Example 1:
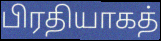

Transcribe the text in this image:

பிரதியாகத்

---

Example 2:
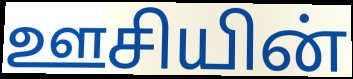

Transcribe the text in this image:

ஊசியின்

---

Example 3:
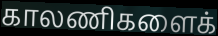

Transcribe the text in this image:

காலணிகளைக்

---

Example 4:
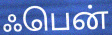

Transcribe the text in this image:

ஃபென்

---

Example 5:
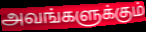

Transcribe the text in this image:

அவங்களுக்கும்